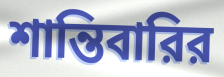
শান্তিবারির